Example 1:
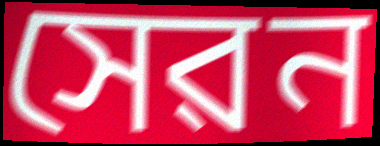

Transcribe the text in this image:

সেৱন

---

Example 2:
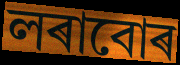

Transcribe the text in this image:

লৰাবোৰ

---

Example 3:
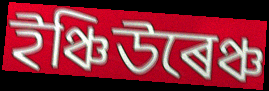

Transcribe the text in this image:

ইঞ্চিউৰেঞ্চ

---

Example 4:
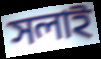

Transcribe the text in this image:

সলাই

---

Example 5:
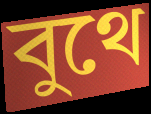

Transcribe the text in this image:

বুথে